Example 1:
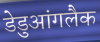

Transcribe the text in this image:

डेडुआंगलैक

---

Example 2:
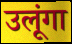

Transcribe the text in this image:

उलूंगा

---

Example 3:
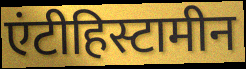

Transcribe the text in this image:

एंटीहिस्टामीन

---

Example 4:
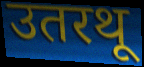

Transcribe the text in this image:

उतरथू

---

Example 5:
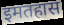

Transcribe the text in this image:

इमतहास